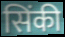
सिंकी